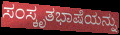
ಸಂಸ್ಕೃತಭಾಷೆಯನ್ನು